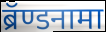
ब्रॅण्डनामा